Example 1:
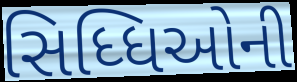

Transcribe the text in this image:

સિધ્ધિઓની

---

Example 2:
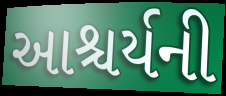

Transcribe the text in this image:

આશ્ચર્યની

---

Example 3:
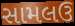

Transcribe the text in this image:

સામલઉ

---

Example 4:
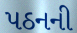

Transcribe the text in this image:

પઠનની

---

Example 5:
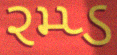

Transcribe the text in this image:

રમ્પ્ડ